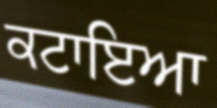
ਕਟਾਇਆ